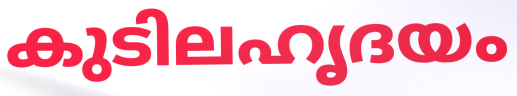
കുടിലഹൃദയം